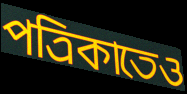
পত্রিকাতেও